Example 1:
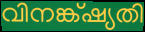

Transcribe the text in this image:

വിനങ്ക്ഷ്യതി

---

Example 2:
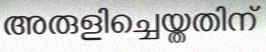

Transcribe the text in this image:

അരുളിച്ചെയ്തതിന്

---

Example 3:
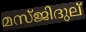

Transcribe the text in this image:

മസ്ജിദുല്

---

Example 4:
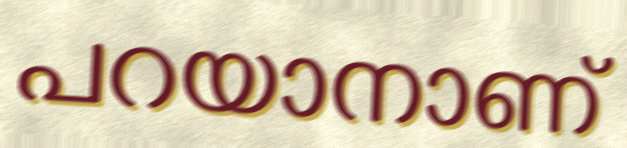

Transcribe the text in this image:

പറയാനാണ്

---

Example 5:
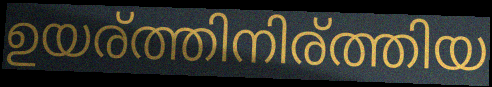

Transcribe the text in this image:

ഉയര്ത്തിനിര്ത്തിയ